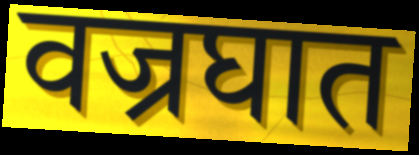
वज्रघात